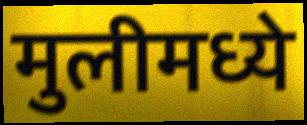
मुलीमध्ये